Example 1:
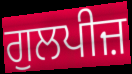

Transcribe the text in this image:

ਗੁਲਪੀਜ਼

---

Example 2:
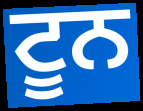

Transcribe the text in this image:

ਟੂਨ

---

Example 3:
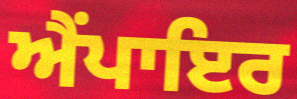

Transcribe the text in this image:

ਐੰਪਾਇਰ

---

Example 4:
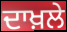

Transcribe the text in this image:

ਦਾਖ਼ਲੇ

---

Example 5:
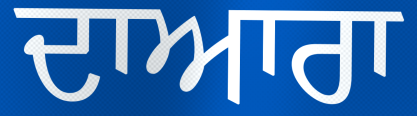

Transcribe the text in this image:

ਦਾਆਰਾ